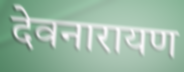
देवनारायण